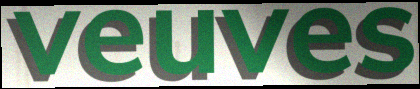
veuves